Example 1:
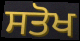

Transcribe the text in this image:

ਸਤੋਖ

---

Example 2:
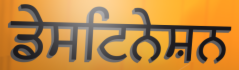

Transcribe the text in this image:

ਡੇਸਟਿਨੇਸ਼ਨ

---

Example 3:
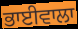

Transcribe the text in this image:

ਭਾਈਵਾਲਾ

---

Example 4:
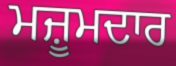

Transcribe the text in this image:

ਮਜ਼ੂਮਦਾਰ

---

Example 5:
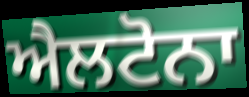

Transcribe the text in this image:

ਐਲਟੋਨਾ